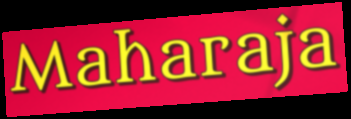
Maharaja